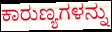
ಕಾರುಣ್ಯಗಳನ್ನು